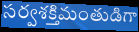
సర్వశక్తిమంతుడిగా